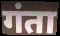
गंता